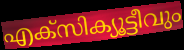
എക്സിക്യൂട്ടീവും